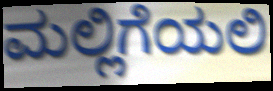
ಮಲ್ಲಿಗೆಯಲಿ